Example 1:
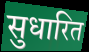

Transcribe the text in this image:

सुधारित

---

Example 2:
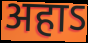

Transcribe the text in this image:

अहाऽ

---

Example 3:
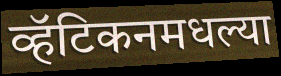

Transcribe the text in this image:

व्हॅटिकनमधल्या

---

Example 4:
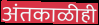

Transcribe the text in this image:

अंतकाळीही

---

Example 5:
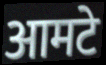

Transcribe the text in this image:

आमटे